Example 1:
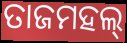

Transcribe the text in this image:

ତାଜମହଲ୍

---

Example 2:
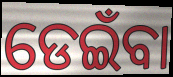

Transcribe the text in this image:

ଡେଇଁବା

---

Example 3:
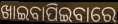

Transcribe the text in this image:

ଖାଇବାପିଇବାରେ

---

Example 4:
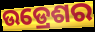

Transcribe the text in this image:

ଉଡ୍ରେଶର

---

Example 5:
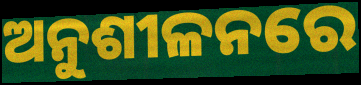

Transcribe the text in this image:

ଅନୁଶୀଳନରେ